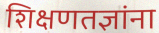
शिक्षणतज्ञांना